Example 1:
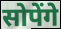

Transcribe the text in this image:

सोपेंगे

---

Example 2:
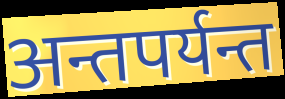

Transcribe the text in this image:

अन्तपर्यन्त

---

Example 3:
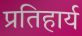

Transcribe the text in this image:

प्रतिहार्य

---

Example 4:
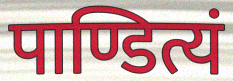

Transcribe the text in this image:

पाण्डित्यं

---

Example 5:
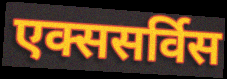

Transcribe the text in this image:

एक्ससर्विस